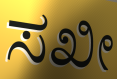
ಸಖೀ